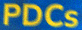
PDCs